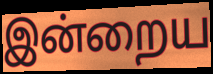
இன்றைய